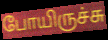
போயிருச்சு